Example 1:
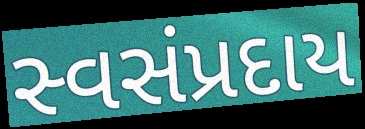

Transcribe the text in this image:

સ્વસંપ્રદાય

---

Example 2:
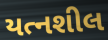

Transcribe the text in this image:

યત્નશીલ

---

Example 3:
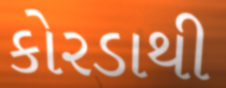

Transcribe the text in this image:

કોરડાથી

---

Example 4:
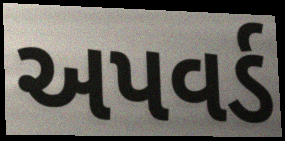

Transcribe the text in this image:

અપવર્ડ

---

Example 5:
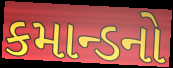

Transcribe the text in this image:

કમાન્ડનો